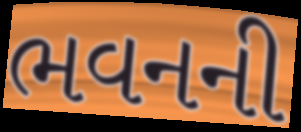
ભવનની